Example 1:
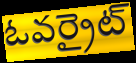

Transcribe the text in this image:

ఓవర్రైట్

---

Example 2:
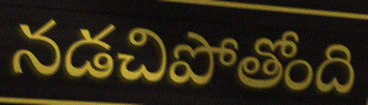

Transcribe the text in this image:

నడచిపోతోంది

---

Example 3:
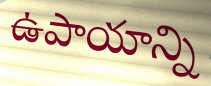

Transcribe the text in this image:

ఉపాయాన్ని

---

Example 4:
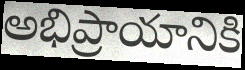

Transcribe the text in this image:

అభిప్రాయానికి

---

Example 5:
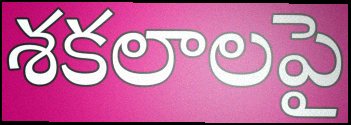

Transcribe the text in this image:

శకలాలపై